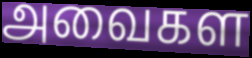
அவைகள